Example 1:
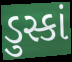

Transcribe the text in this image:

ડુસ્કાં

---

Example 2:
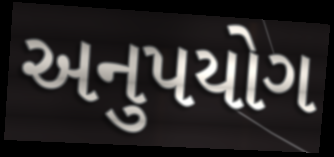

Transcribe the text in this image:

અનુપયોગ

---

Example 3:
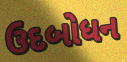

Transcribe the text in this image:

ઉદબોધન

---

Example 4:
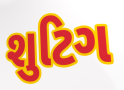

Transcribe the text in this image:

શુટિગ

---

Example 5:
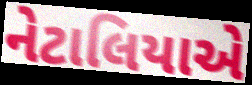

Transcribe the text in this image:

નેટાલિયાએ